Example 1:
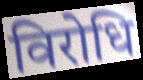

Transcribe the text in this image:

विरोधि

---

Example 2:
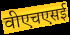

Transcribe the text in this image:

वीएचएसई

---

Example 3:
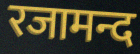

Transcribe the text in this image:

रजामन्द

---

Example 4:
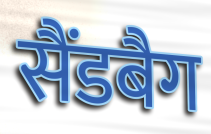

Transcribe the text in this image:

सैंडबैग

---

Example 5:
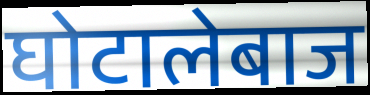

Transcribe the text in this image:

घोटालेबाज